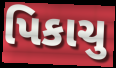
પિકાચુ